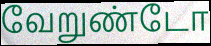
வேறுண்டோ